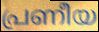
പ്രണീയ